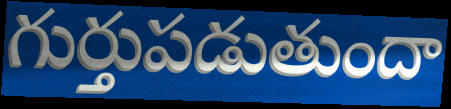
గుర్తుపడుతుందా